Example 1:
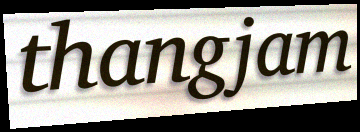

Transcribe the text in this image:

thangjam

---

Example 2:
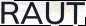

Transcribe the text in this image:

RAUT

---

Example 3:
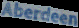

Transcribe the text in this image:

Aberdeen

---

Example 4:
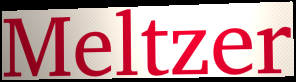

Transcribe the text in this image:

Meltzer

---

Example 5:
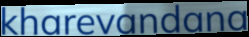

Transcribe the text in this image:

kharevandana